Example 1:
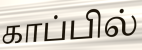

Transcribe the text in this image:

காப்பில்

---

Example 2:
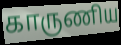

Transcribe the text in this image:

காருணிய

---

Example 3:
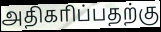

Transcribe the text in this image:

அதிகரிப்பதற்கு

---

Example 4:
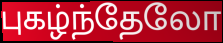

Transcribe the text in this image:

புகழ்ந்தேலோ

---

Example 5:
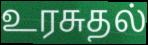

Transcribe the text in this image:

உரசுதல்